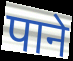
पाने